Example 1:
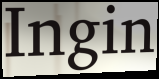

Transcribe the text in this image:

Ingin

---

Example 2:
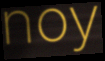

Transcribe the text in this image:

noy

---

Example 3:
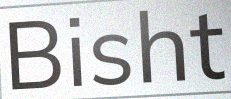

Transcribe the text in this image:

Bisht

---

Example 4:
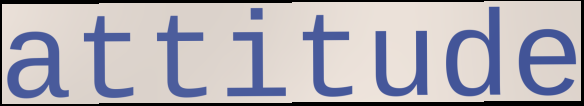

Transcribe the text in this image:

attitude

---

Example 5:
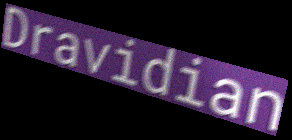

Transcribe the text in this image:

Dravidian